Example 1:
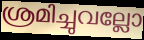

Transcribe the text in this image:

ശ്രമിച്ചുവല്ലോ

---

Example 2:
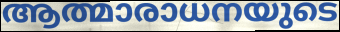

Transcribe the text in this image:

ആത്മാരാധനയുടെ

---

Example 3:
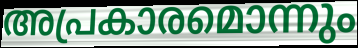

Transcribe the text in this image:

അപ്രകാരമൊന്നും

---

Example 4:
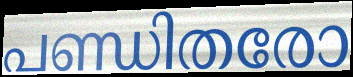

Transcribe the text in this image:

പണ്ഡിതരോ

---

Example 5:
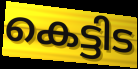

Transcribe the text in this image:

കെട്ടിട